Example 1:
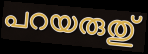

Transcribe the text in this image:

പറയരുതു്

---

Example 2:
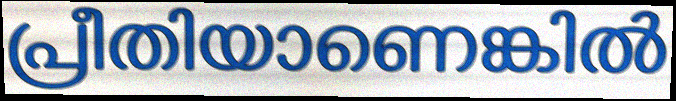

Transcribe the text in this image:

പ്രീതിയാണെങ്കിൽ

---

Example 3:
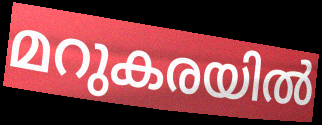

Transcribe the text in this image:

മറുകരയിൽ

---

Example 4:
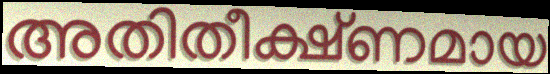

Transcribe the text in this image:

അതിതീക്ഷ്ണമായ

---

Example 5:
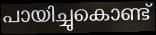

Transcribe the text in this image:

പായിച്ചുകൊണ്ട്